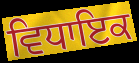
ਵਿਧਾਇਕ